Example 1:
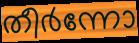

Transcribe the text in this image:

തീർന്നോ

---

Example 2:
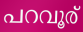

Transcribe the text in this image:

പറവൂര്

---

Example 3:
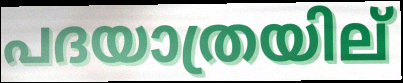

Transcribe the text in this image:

പദയാത്രയില്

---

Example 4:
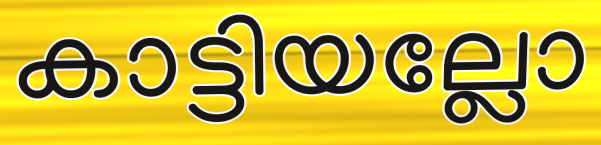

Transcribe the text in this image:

കാട്ടിയല്ലോ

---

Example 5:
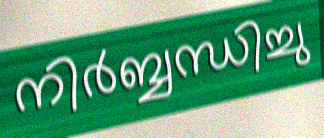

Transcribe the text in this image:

നിർബ്ബന്ധിച്ചു